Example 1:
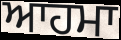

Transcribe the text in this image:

ਆਹਮਾ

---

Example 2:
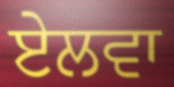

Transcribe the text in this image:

ਏਲਵਾ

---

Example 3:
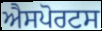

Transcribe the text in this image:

ਐਸਪੋਰਟਸ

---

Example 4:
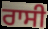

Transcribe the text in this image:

ਰਾਸੀ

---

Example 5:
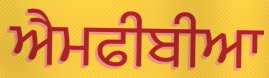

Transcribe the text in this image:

ਐਮਫੀਬੀਆ